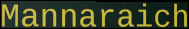
Mannaraich